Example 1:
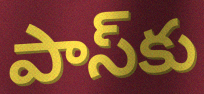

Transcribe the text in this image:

పాస్‌కు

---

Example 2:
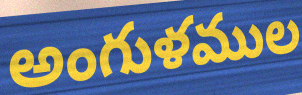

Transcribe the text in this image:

అంగుళముల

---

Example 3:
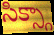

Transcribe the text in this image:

సిక్స్గా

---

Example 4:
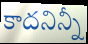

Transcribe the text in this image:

కాదనిన్నీ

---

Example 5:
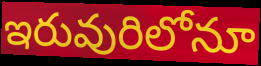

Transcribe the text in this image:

ఇరువురిలోనూ